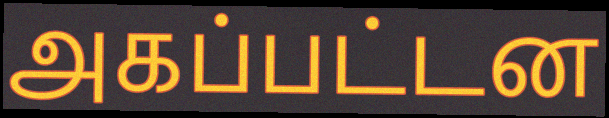
அகப்பட்டன